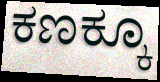
ಕಣಕ್ಕೂ